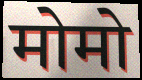
मोमो